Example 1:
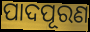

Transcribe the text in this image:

ପାଦପୂରଣ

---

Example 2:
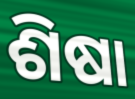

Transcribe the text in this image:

ଶିଷା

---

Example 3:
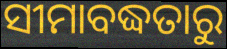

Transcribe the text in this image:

ସୀମାବଦ୍ଧତାରୁ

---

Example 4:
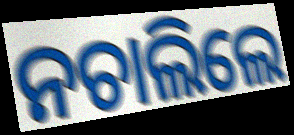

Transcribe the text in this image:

ନଚାଲିଲେ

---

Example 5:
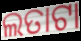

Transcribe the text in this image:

ଲତାଟା